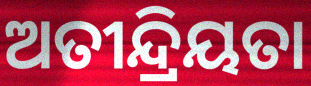
ଅତୀନ୍ଦ୍ରିୟତା